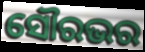
ସୌରଭର